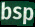
bsp